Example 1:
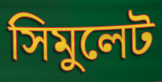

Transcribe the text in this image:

সিমুলেট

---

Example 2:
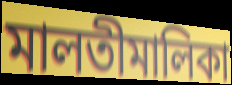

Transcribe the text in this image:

মালতীমালিকা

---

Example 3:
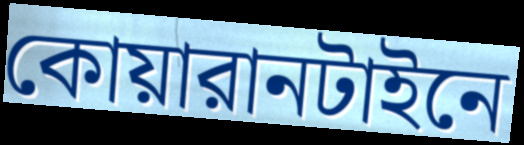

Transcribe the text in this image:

কোয়ারানটাইনে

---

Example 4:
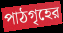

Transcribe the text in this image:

পাঠগৃহের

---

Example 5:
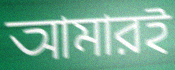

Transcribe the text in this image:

আমারই